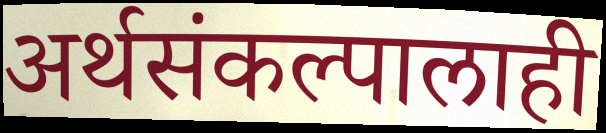
अर्थसंकल्पालाही